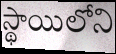
స్థాయిలోని